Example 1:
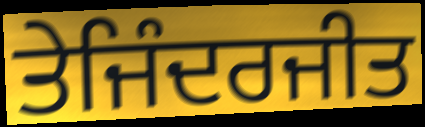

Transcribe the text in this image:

ਤੇਜਿੰਦਰਜੀਤ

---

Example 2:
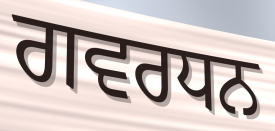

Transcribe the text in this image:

ਗਵਰਧਨ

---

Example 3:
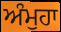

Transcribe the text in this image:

ਅੰਮੁਹਾ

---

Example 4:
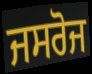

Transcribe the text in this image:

ਜਸਰੋਜ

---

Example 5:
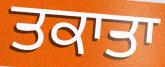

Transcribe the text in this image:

ਤਕਾਤਾ